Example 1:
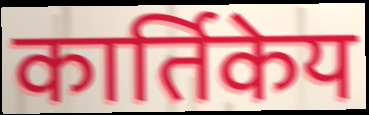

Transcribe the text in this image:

कार्तिकेय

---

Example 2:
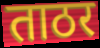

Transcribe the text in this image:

ताठर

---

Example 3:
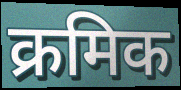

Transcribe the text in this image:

क्रमिक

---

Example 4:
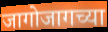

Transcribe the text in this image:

जागोजागच्या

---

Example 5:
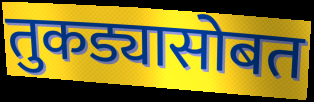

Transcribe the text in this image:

तुकड्यासोबत